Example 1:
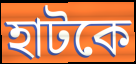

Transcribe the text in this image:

হাটকে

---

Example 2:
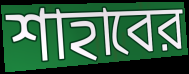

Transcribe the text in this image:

শাহাবের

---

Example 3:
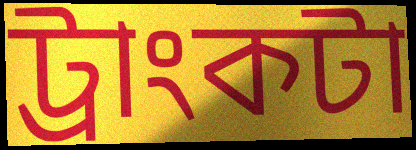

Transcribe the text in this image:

ট্রাংকটা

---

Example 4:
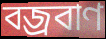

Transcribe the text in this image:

বজ্রবাণ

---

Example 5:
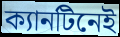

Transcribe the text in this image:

ক্যানটিনেই